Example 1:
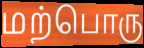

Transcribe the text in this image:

மற்பொரு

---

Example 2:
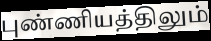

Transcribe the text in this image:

புண்ணியத்திலும்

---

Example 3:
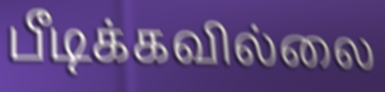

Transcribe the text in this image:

பீடிக்கவில்லை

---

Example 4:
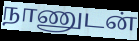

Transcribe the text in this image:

நாணுடன்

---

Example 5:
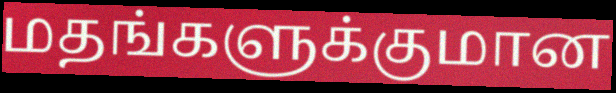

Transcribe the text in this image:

மதங்களுக்குமான